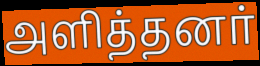
அளித்தனர்